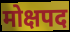
मोक्षपद